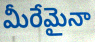
మీరేమైనా